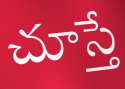
చూస్తే